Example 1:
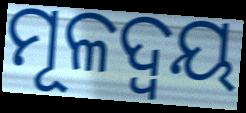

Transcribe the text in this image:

ମୂଳଦ୍ଵୟ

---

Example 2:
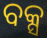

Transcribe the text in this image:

ବକ୍ସ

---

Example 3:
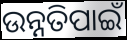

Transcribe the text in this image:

ଉନ୍ନତିପାଇଁ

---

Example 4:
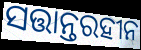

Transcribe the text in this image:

ସତ୍ତାନ୍ତରହୀନ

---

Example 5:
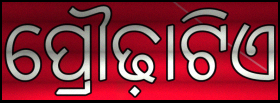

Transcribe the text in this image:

ପ୍ରୌଢ଼ାଟିଏ